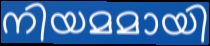
നിയമമായി